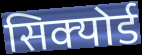
सिक्‍योर्ड